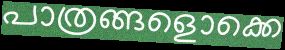
പാത്രങ്ങളൊക്കെ